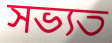
সভ্যত